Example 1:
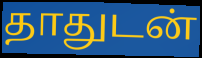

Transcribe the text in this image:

தாதுடன்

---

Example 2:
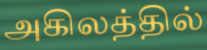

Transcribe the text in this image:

அகிலத்தில்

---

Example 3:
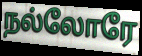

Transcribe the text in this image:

நல்லோரே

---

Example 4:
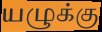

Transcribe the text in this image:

யழுக்கு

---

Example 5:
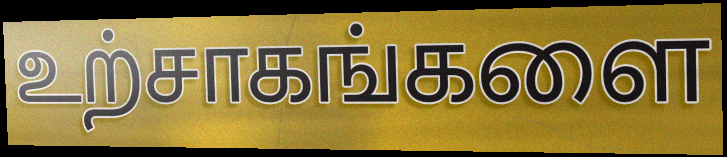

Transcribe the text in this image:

உற்சாகங்களை